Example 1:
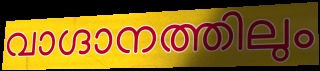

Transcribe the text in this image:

വാഗ്ദാനത്തിലും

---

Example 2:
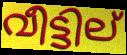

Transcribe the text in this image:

വീട്ടില്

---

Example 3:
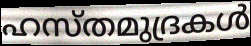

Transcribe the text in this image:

ഹസ്തമുദ്രകൾ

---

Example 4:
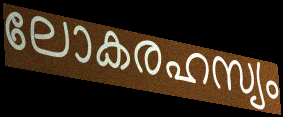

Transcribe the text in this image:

ലോകരഹസ്യം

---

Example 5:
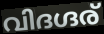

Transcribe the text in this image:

വിദഗ്ദര്